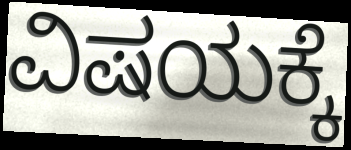
ವಿಷಯಕ್ಕೆ